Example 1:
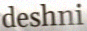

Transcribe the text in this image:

deshni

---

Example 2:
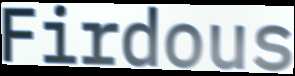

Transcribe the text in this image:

Firdous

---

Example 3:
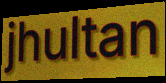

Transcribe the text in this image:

jhultan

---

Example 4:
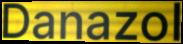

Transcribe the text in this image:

Danazol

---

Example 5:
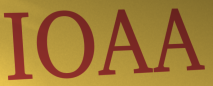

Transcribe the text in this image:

IOAA